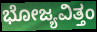
ಭೋಜ್ಯವಿತ್ತಂ